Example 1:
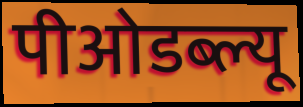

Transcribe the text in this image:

पीओडब्ल्यू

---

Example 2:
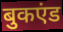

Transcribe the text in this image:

बुकएंड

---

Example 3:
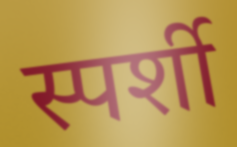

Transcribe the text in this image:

स्पर्शी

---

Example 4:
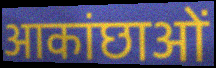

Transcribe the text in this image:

आकांछाओं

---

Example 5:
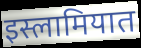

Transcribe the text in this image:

इस्लामियात